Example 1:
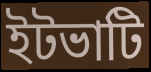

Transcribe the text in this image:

ইটভাটি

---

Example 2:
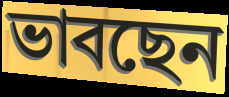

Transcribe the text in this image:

ভাবছেন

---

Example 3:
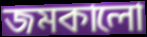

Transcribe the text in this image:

জমকালো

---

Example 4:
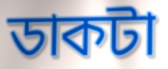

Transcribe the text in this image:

ডাকটা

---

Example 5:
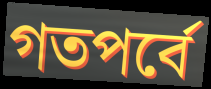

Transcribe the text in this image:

গতপর্বে